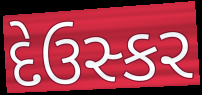
દેઉસ્કર